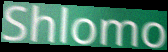
Shlomo